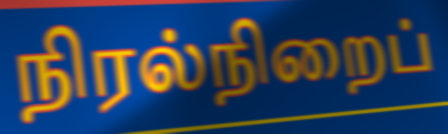
நிரல்நிறைப்